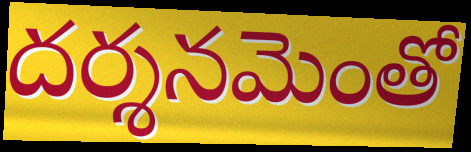
దర్శనమెంతో